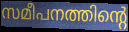
സമീപനത്തിന്റെ